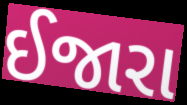
ઈજારા